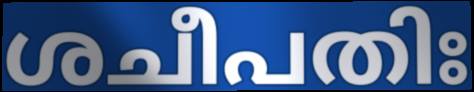
ശചീപതിഃ